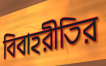
বিবাহরীতির